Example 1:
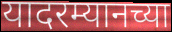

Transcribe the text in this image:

यादरम्यानच्या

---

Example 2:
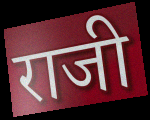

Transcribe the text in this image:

राजी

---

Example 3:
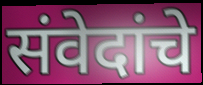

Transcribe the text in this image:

संवेदांचे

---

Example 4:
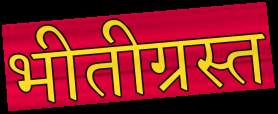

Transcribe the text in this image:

भीतीग्रस्त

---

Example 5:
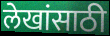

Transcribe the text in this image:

लेखांसाठी